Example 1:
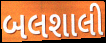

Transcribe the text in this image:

બલશાલી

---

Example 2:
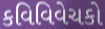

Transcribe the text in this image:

કવિવિવેચકો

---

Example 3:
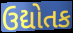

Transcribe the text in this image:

ઉદ્યોતક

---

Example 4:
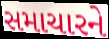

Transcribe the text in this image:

સમાચારને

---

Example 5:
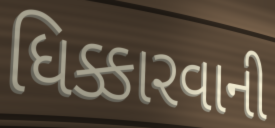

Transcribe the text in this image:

ધિક્કારવાની